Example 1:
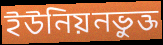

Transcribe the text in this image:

ইউনিয়নভুক্ত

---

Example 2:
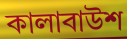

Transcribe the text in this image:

কালাবাউশ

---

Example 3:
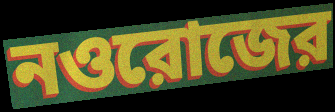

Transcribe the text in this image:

নওরোজের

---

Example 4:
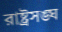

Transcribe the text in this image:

রাষ্ট্রসঙ্ঘ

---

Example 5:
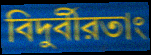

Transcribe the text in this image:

বিদুর্বীরতাং